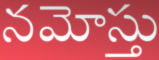
నమోస్తు